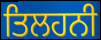
ਤਿਲਹਨੀ